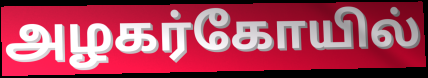
அழகர்கோயில்